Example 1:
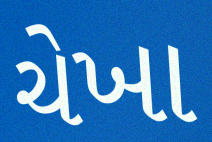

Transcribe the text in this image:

ચેખા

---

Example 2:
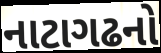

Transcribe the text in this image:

નાટાગઢનો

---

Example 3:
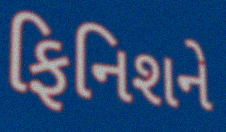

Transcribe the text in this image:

ફિનિશને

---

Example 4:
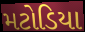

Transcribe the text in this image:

મટોડિયા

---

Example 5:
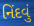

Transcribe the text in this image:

નિંદવું